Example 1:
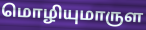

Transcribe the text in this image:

மொழியுமாருள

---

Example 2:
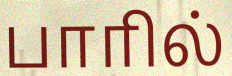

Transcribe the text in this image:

பாரில்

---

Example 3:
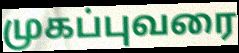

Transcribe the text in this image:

முகப்புவரை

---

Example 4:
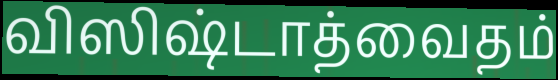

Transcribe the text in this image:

விஸிஷ்டாத்வைதம்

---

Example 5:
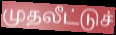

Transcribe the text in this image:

முதலீட்டுச்